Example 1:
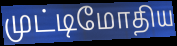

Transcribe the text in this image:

முட்டிமோதிய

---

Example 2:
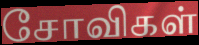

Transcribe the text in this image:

சோவிகள்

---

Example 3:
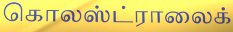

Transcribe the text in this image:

கொலஸ்ட்ராலைக்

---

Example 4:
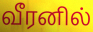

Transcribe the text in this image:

வீரனில்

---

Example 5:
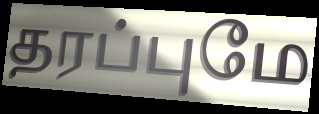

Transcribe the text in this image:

தரப்புமே